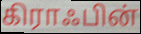
கிராஃபின்